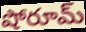
షోరూమ్